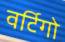
वर्टिगो